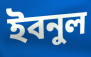
ইবনুল